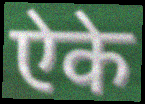
ऐके